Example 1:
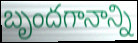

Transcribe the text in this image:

బృందగానాన్ని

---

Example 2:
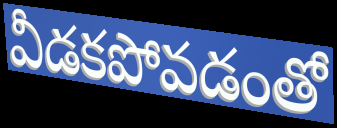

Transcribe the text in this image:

వీడకపోవడంతో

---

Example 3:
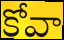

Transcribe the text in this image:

కోవా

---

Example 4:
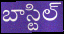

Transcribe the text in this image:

బాస్టిల్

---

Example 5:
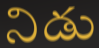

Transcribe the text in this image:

నిడు